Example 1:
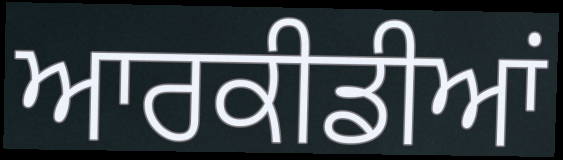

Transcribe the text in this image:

ਆਰਕੀਡੀਆਂ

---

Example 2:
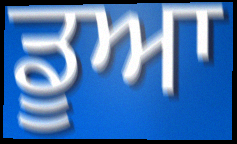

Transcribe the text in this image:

ਡੂਆ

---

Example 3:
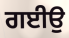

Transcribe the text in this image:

ਗਈਉ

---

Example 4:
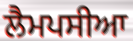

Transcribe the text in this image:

ਲੈਮਪਸੀਆ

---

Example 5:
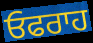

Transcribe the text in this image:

ਓਫਰਾਹ